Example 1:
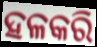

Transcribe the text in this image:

ହଳକରି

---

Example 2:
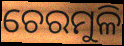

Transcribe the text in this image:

ଚେରମୁଳି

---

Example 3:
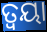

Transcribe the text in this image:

ତ୍ୱୟା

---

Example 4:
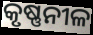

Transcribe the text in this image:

କୃଷ୍ଣନୀଳ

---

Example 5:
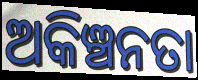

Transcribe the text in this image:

ଅକିଞ୍ଚନତା